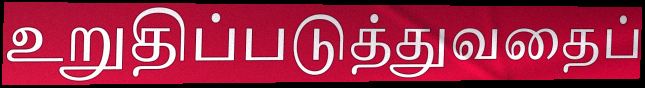
உறுதிப்படுத்துவதைப்